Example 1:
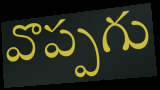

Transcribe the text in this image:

వొప్పగు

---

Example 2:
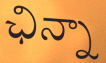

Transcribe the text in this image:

ఛిన్నా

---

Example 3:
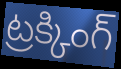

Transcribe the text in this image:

ట్రక్కింగ్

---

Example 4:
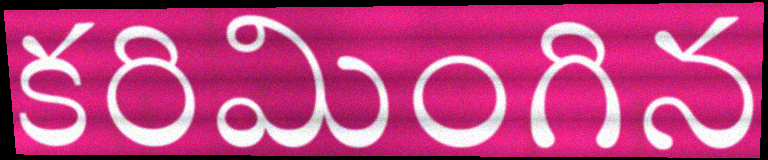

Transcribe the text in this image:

కరిమింగిన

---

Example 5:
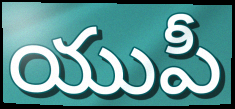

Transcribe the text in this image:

యుపీ